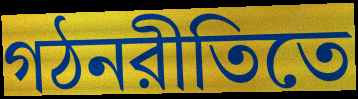
গঠনরীতিতে